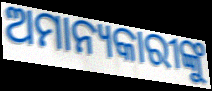
ଅମାନ୍ୟକାରୀଙ୍କୁ